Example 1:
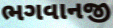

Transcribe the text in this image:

ભગવાનજી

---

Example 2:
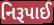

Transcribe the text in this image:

નિરૂપાઈ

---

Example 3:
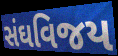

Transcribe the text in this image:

સંઘવિજય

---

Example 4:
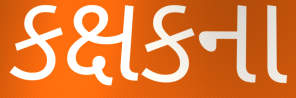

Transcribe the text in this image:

કક્ષકના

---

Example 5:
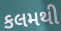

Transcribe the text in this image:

કલમથી